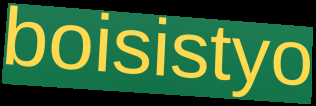
boisistyo